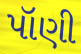
પૉણી